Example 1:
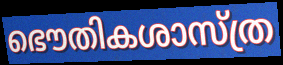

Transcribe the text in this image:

ഭൌതികശാസ്ത്ര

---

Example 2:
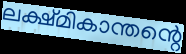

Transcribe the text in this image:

ലക്ഷ്മികാന്തന്റെ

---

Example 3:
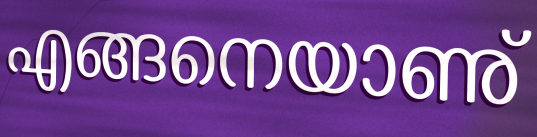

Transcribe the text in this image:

എങ്ങനെയാണു്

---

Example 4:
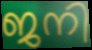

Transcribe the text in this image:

ജനി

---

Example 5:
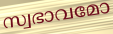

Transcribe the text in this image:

സ്വഭാവമോ